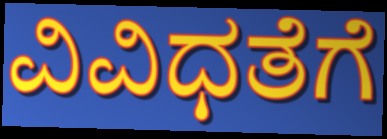
ವಿವಿಧತೆಗೆ